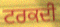
ਟਰਕਦੀ